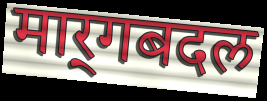
मार्गबदल